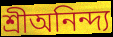
শ্রীঅনিন্দ্য